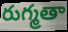
రుగ్మతా